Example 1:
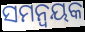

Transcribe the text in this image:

ସମନ୍ୱୟକ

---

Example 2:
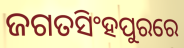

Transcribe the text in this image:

ଜଗତସିଂହପୁରରେ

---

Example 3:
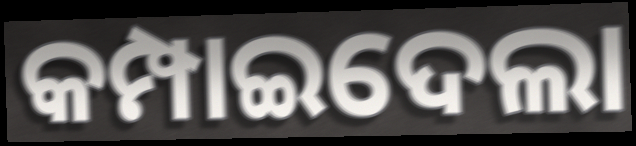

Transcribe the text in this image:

କମ୍ପାଇଦେଲା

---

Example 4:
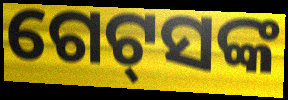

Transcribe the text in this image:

ଗେଟ୍‌ସଙ୍କ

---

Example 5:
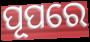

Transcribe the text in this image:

ପୂପରେ